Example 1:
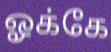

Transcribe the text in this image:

ஓக்கே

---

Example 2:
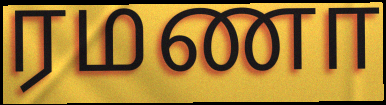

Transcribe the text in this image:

ரமணா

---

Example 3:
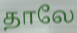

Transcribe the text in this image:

தாலே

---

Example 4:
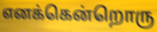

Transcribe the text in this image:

எனக்கென்றொரு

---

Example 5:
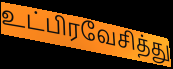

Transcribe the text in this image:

உட்பிரவேசித்து